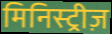
मिनिस्ट्रीज़